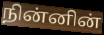
நின்னின்